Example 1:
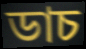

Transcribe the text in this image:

ডাচ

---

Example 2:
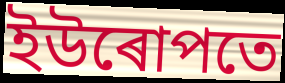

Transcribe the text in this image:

ইউৰোপতে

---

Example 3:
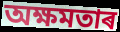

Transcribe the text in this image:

অক্ষমতাৰ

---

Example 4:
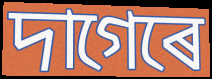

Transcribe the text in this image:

দাগেৰে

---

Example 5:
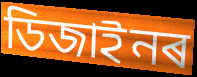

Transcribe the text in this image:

ডিজাইনৰ